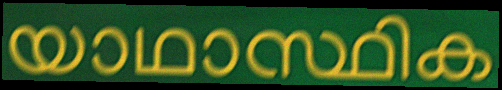
യാഥാസ്ഥിക